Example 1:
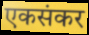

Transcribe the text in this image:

एकसंकर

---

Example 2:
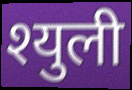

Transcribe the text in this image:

श्युली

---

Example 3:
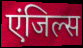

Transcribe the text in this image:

एंजिल्स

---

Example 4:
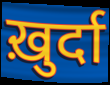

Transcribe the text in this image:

ख़ुर्दा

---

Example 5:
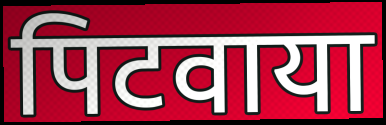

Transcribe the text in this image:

पिटवाया